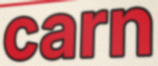
carn